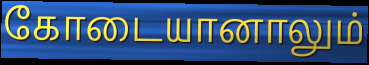
கோடையானாலும்